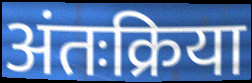
अंतःक्रिया